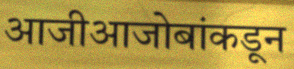
आजीआजोबांकडून